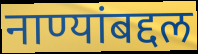
नाण्यांबद्दल